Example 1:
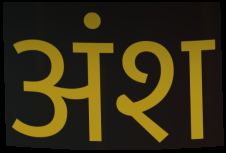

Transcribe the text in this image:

अंश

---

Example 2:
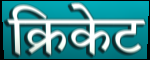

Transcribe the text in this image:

क्रिकेट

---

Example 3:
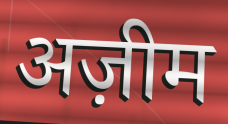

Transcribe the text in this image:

अज़ीम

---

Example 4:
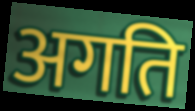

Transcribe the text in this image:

अगति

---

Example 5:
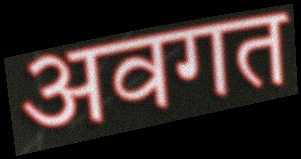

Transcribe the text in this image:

अवगत